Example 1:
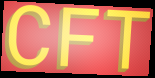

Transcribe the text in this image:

CFT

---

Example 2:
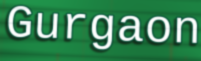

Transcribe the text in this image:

Gurgaon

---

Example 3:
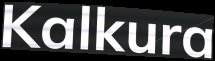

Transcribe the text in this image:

Kalkura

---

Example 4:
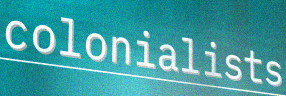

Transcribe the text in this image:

colonialists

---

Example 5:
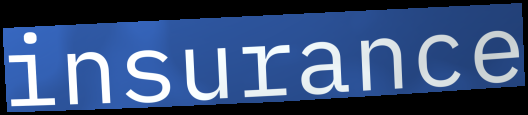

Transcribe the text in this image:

insurance